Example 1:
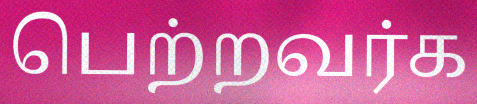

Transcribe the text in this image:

பெற்றவர்க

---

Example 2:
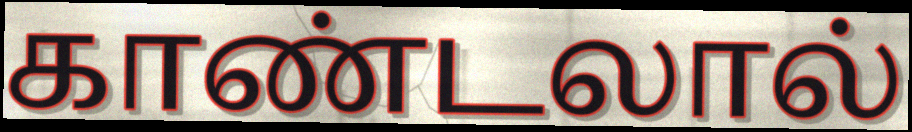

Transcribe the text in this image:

காண்டலால்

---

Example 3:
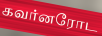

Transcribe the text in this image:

கவர்னரோட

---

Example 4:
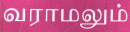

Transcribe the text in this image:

வராமலும்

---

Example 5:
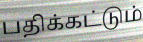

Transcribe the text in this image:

பதிக்கட்டும்